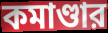
কমাণ্ডার